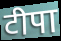
टीपा